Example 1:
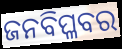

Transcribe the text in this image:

ଜନବିପ୍ଳବର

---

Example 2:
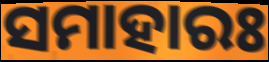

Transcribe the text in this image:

ସମାହାରଃ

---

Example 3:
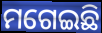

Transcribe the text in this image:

ମଗେଇଛି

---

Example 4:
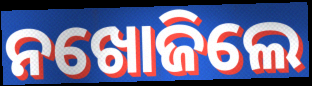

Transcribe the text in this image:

ନଖୋଜିଲେ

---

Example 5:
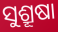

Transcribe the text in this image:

ସୁଶ୍ରୂଷା